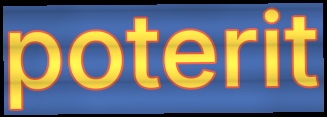
poterit